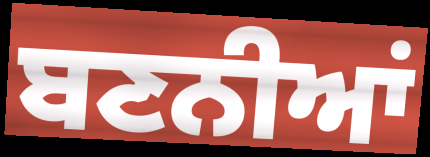
ਬਣਨੀਆਂ